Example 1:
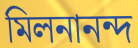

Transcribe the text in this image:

মিলনানন্দ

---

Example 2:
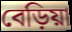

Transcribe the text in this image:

বেড়িয়া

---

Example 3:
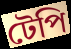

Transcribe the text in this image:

টেপি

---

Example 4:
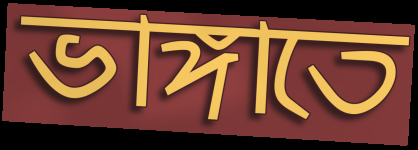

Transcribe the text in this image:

ভাঙ্গাতে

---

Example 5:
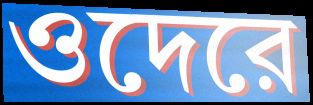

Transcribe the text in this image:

ওদেরে